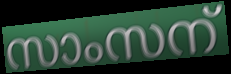
സാംസന്